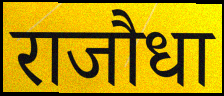
राजौधा